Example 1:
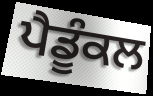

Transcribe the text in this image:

ਪੈਡੂੰਕਲ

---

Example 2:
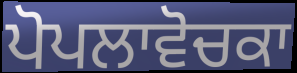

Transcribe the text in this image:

ਪੋਪਲਾਵੋਚਕਾ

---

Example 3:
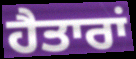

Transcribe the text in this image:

ਹੈਤਾਰਾਂ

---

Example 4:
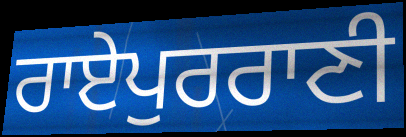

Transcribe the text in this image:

ਰਾਏਪੁਰਰਾਣੀ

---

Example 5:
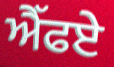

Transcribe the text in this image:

ਐੱਫਏ